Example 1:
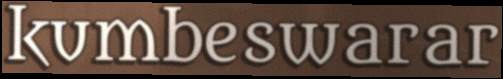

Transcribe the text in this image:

kumbeswarar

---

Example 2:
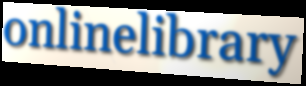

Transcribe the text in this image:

onlinelibrary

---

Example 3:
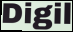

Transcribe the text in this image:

Digil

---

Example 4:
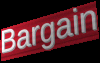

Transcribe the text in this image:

Bargain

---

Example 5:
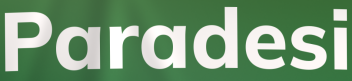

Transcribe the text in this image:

Paradesi